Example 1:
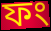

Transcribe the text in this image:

ফং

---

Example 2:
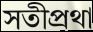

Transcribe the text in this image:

সতীপ্রথা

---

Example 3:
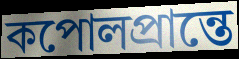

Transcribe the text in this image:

কপোলপ্রান্তে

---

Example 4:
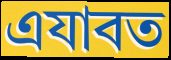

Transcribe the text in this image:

এযাবত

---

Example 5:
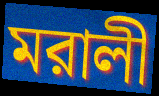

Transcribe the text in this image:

মরালী